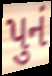
પુનં